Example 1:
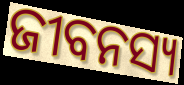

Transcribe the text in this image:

ଜୀବନସ୍ୟ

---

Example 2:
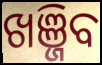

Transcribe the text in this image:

ଖଞ୍ଜିବ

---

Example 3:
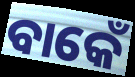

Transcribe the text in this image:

ବାକେଁ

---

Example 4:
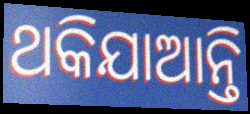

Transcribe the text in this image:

ଥକିଯାଆନ୍ତି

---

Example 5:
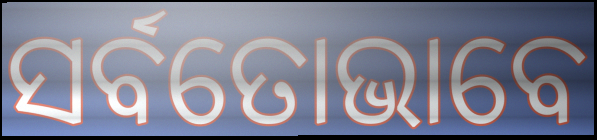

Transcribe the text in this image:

ସର୍ବତୋଭାବେ